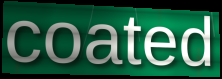
coated